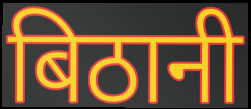
बिठानी